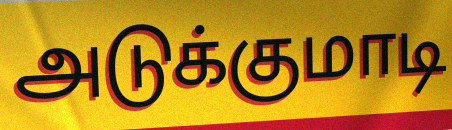
அடுக்குமாடி